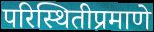
परिस्थितीप्रमाणे